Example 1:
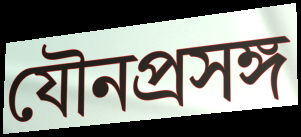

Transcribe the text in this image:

যৌনপ্রসঙ্গ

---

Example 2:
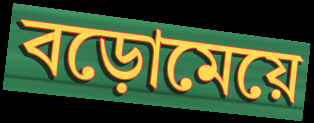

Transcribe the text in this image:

বড়োমেয়ে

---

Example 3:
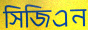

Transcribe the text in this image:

সিজিএন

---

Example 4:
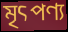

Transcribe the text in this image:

মৃৎপণ্য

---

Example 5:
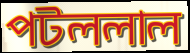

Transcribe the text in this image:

পটললাল